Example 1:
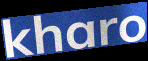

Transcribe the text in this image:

kharo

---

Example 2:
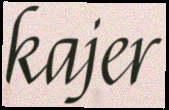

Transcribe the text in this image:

kajer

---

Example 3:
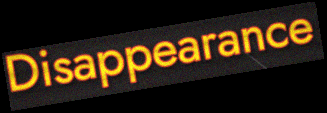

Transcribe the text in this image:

Disappearance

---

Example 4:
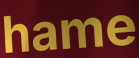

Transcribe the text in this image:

hame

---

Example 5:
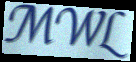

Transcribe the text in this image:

MWL